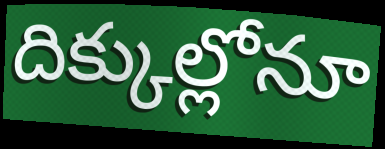
దిక్కుల్లోనూ